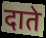
दाते